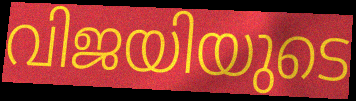
വിജയിയുടെ